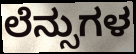
ಲೆನ್ಸುಗಳ